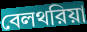
বেলথরিয়া